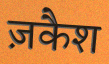
ज़कैश